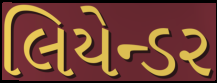
લિયેન્ડર